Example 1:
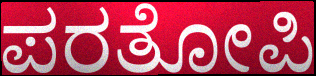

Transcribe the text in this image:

ಪರತೋಪಿ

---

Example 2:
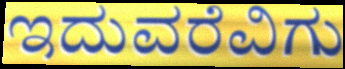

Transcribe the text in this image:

ಇದುವರೆವಿಗು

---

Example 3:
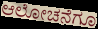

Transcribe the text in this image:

ಆಲೋಚನೆಗೂ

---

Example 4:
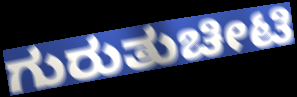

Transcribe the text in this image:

ಗುರುತುಚೀಟಿ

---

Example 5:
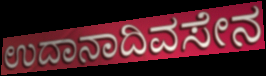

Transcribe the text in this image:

ಉದಾನಾದಿವಸೇನ